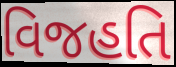
વિજહતિ